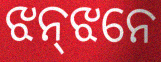
ଝନ୍‌ଝନେ